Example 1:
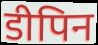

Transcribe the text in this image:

डीपिन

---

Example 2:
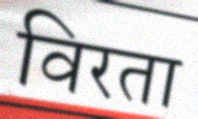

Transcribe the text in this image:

विरता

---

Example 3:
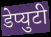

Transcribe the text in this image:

डेप्युटी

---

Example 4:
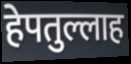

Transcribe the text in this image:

हेपतुल्लाह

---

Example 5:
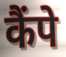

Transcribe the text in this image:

कैंपे